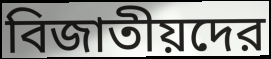
বিজাতীয়দের